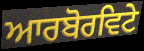
ਆਰਬੋਰਵਿਟੇ